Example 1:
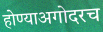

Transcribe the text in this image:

होण्याअगोदरच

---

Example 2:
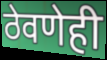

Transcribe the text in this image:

ठेवणेही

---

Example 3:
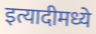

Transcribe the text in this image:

इत्यादीमध्ये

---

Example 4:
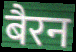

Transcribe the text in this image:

बैरन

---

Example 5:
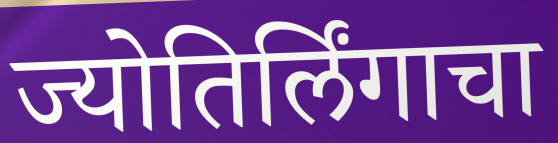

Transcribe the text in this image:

ज्योतिर्लिंगाचा